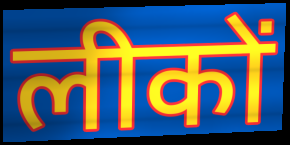
लीकों